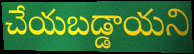
చేయబడ్డాయని